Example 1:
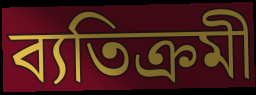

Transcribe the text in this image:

ব্যতিক্ৰমী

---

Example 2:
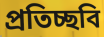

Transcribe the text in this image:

প্ৰতিচ্ছবি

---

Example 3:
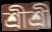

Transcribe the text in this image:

শ্ৰীশ্ৰী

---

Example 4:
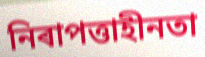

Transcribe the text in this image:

নিৰাপত্তাহীনতা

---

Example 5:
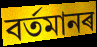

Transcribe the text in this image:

বৰ্তমানৰ